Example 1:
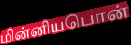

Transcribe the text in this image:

மின்னியபொன்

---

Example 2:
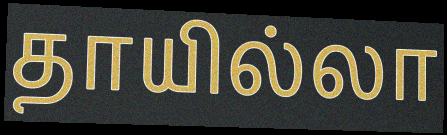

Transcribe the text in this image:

தாயில்லா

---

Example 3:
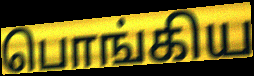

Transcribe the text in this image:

பொங்கிய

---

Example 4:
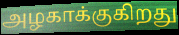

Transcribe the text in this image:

அழகாக்குகிறது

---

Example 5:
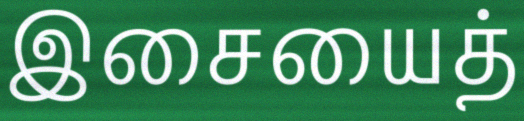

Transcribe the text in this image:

இசையைத்